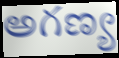
అగణ్య